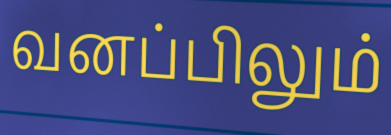
வனப்பிலும்